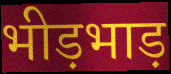
भीड़भाड़